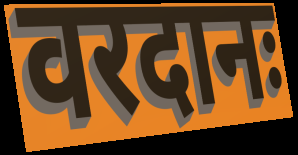
वरदानः